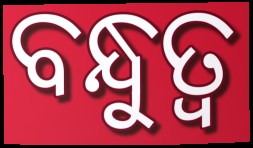
ବନ୍ଧୁତ୍ୱ